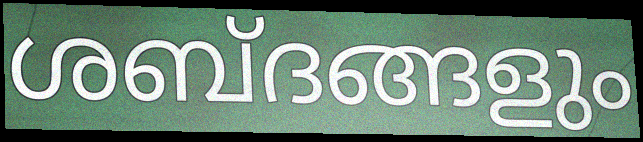
ശബ്ദങ്ങളും